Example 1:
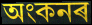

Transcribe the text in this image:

অংকনৰ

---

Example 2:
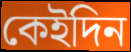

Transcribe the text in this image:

কেইদিন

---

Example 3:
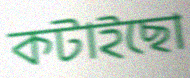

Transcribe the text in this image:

কটাইছো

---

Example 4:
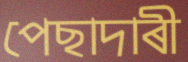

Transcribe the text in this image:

পেছাদাৰী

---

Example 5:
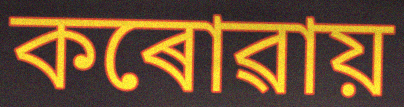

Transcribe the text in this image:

কৰোৱায়